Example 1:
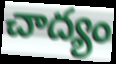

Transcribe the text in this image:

చాద్యం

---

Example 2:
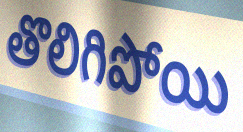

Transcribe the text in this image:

తొలిగిపోయి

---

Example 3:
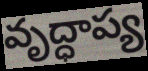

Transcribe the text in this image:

వృద్ధాప్య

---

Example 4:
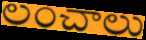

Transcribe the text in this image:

లంచాలు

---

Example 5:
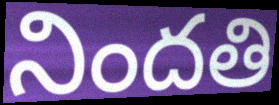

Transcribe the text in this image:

నిందతి